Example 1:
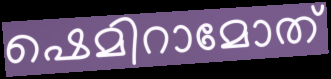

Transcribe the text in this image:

ഷെമിറാമോത്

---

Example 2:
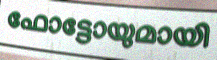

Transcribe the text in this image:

ഫോട്ടോയുമായി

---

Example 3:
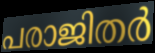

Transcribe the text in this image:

പരാജിതർ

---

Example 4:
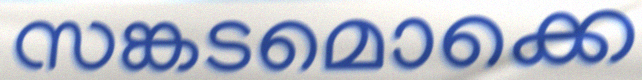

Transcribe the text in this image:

സങ്കടമൊക്കെ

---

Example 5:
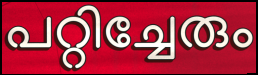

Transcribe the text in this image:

പറ്റിച്ചേരും